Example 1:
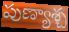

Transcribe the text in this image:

పుణ్యాశ్చ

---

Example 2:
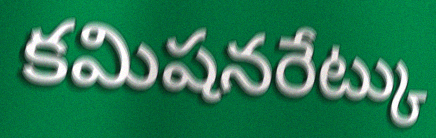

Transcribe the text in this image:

కమిషనరేట్కు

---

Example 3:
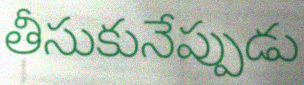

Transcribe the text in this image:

తీసుకునేప్పుడు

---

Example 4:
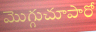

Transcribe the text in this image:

మొగ్గుచూపారో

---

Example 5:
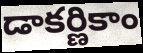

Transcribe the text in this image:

డాకర్ణికాం